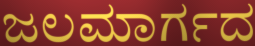
ಜಲಮಾರ್ಗದ